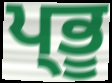
ਪ੍ਭੂ